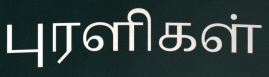
புரளிகள்